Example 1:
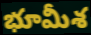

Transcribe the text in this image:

భూమీశ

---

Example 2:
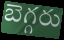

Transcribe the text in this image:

బెగ్గరు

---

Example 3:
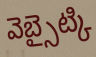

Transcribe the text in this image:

వెబ్సైట్కి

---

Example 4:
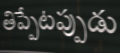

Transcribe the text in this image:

తిప్పేటప్పుడు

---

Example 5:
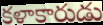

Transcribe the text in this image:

కళాకారుడు